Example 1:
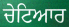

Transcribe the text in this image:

ਚੇਟਿਆਰ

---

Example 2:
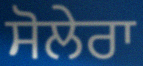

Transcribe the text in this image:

ਸੋਲੇਰਾ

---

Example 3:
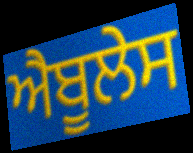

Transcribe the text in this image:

ਐਬੂਲੇਸ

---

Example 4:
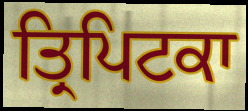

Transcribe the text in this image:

ਤ੍ਰਿਪਿਟਕਾ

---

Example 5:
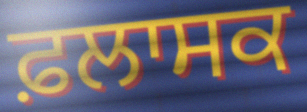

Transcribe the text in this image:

ਫ਼ਲਾਸਕ